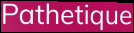
Pathetique